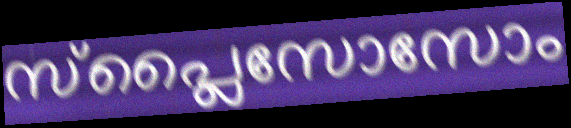
സ്പ്ലൈസോസോം